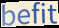
befit